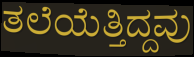
ತಲೆಯೆತ್ತಿದ್ದವು